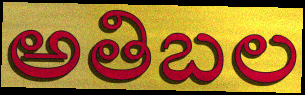
అతిబల